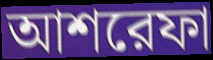
আশরেফা